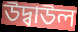
উদ্বাউল